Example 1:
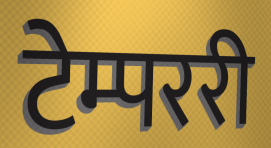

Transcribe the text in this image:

टेम्पररी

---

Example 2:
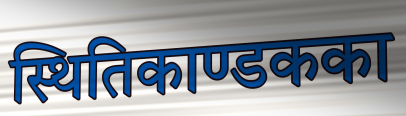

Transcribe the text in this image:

स्थितिकाण्डकका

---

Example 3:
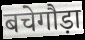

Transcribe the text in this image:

बचेगौड़ा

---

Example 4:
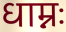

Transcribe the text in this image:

धाम्नः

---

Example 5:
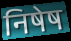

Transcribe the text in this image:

निषेष